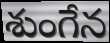
శుంగేన